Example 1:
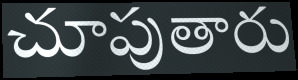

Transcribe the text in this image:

చూపుతారు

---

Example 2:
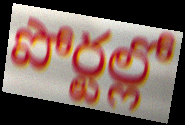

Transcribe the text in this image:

పోర్టల్లో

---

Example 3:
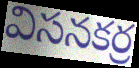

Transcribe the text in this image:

విసనకర్ర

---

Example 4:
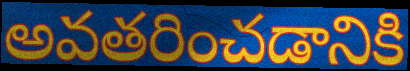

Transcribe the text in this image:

అవతరించడానికి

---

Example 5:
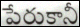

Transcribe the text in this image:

పేరుకానీ